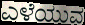
ಎಳೆಯುವ